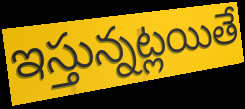
ఇస్తున్నట్లయితే